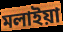
মলাইয়া